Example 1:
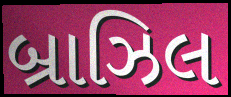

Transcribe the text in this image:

બ્રાઝિલ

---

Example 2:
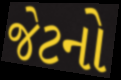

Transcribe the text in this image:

જેટનો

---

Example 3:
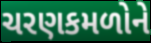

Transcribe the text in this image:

ચરણકમળોને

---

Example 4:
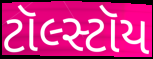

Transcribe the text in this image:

ટૉલ્સ્ટૉય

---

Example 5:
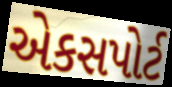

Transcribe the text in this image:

એકસપોર્ટ